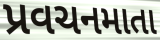
પ્રવચનમાતા